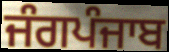
ਜੰਗਪੰਜਾਬ